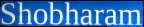
Shobharam